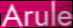
Arule